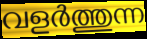
വളർത്തുന്ന